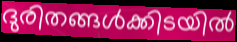
ദുരിതങ്ങൾക്കിടയിൽ